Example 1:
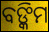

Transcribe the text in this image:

ବଙ୍କିମ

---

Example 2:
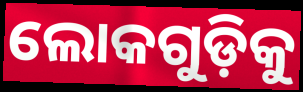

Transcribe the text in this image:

ଲୋକଗୁଡ଼ିକୁ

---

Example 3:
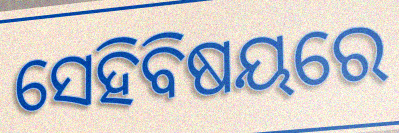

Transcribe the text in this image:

ସେହିବିଷୟରେ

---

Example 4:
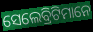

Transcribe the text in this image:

ସେଲେବ୍ରିଟିମାନେ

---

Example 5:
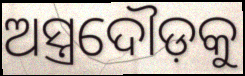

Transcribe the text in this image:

ଅସ୍ତ୍ରଦୌଡ଼କୁ